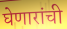
घेणारांची